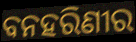
ବନହରିଣୀର